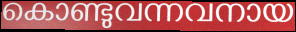
കൊണ്ടുവന്നവനായ